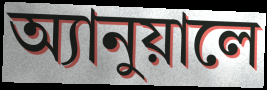
অ্যানুয়ালে